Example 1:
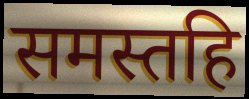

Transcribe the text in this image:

समस्तहि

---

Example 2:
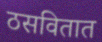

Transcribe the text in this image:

ठसवितात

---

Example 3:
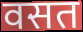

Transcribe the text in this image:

वसत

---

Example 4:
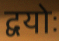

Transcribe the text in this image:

द्वयोः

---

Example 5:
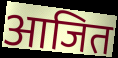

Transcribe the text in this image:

आजित